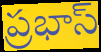
ప్రభాస్